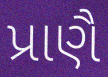
પ્રાણૈ